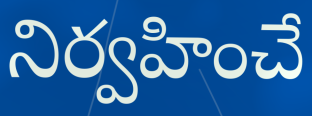
నిర్వహించే